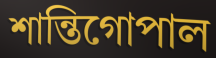
শান্তিগোপাল